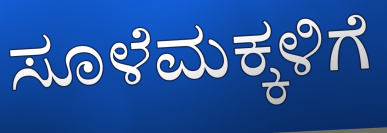
ಸೂಳೆಮಕ್ಕಳಿಗೆ